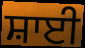
ਸ਼ਾਈ